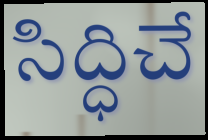
సిద్ధిచే